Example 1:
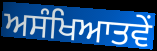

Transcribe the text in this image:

ਅਸੰਖਿਆਤਵੇਂ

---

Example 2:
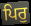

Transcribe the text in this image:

ਪਿਰੁ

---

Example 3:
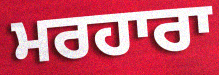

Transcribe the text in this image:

ਮਰਹਾਰਾ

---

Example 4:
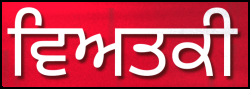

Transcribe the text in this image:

ਵਿਅਤਕੀ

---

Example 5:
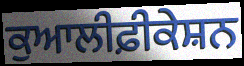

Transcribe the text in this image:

ਕੁਆਲੀਫ਼ੀਕੇਸ਼ਨ